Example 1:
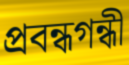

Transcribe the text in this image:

প্রবন্ধগন্ধী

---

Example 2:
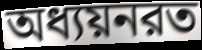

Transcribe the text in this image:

অধ্যয়নরত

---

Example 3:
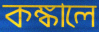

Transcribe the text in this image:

কঙ্কালে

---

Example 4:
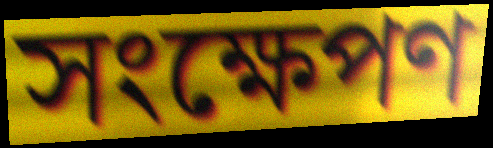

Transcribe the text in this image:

সংক্ষেপণ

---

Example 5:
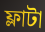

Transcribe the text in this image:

ফ্লাটা